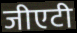
जीएटी